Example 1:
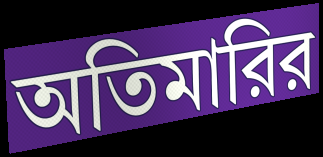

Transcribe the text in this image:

অতিমারির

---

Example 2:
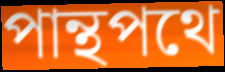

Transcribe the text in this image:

পান্থপথে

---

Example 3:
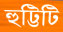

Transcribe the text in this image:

হুট্টিটি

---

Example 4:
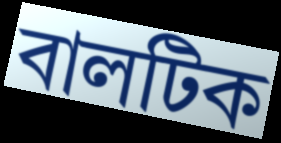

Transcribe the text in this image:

বালটিক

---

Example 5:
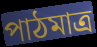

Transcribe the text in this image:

পাঠমাত্র